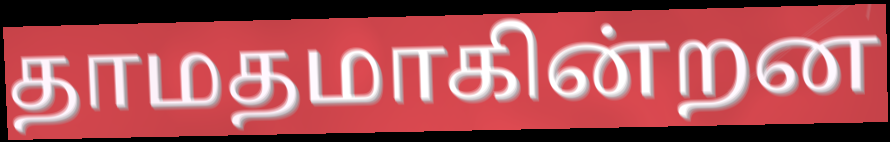
தாமதமாகின்றன